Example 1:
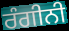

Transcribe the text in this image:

ਰੰਗੀਨੀ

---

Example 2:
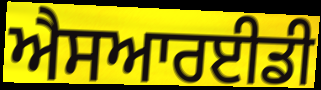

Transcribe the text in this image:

ਐਸਆਰਈਡੀ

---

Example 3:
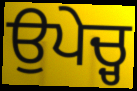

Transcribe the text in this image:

ਉਪੇਚ੍ਚ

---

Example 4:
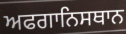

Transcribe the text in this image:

ਅਫਗਾਨਿਸਥਾਨ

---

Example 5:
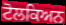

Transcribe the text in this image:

ਟੋਲਕਿਅਨ